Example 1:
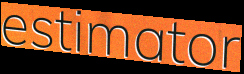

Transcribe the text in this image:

estimator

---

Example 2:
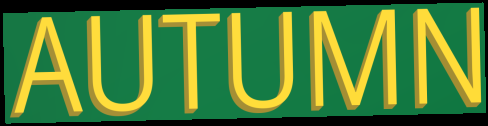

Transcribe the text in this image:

AUTUMN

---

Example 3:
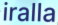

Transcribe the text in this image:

iralla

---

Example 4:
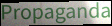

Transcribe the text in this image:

Propaganda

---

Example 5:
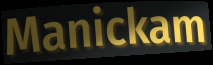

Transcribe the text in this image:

Manickam